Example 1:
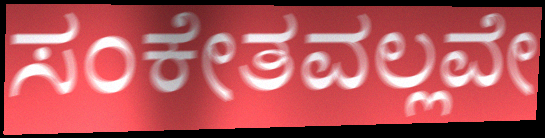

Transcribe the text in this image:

ಸಂಕೇತವಲ್ಲವೇ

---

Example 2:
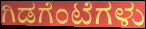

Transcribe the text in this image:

ಗಿಡಗೆಂಟೆಗಳು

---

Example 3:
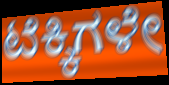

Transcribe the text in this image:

ಟೆಕ್ಕಿಗಳೇ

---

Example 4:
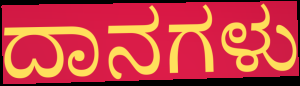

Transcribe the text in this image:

ದಾನಗಳು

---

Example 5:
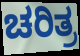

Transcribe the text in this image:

ಚರಿತ್ರ